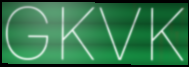
GKVK